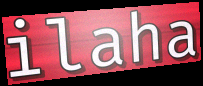
ilaha